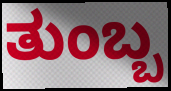
ತುಂಬ್ಬ